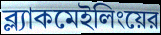
ব্ল্যাকমেইলিংয়ের